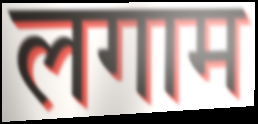
लगाम